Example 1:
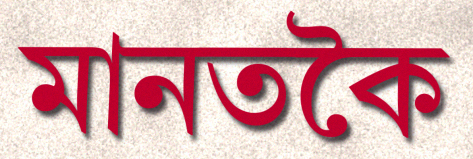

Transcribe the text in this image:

মানতকৈ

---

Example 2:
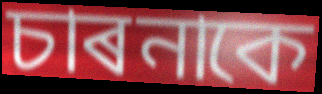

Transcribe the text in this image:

চাৰনাকে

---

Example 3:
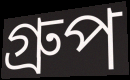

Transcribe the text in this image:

গ্ৰুপ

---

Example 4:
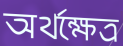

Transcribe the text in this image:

অৰ্থক্ষেত্ৰ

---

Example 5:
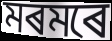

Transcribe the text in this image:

মৰমৰে